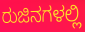
ರುಜಿನಗಳಲ್ಲಿ